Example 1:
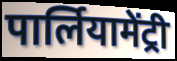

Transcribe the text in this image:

पार्लियामेंट्री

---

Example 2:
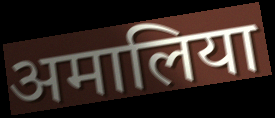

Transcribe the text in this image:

अमालिया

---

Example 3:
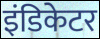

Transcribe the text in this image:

इंडिकेटर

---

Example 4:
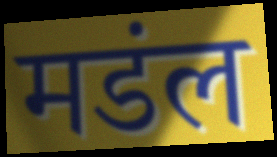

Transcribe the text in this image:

मडंल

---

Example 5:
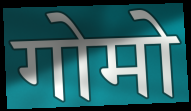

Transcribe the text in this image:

गोमो